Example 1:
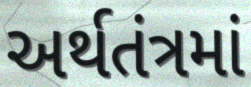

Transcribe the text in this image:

અર્થતંત્રમાં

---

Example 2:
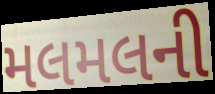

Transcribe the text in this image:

મલમલની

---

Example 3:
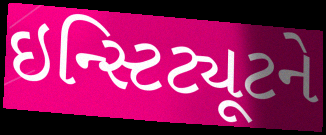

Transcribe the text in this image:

ઇન્સ્ટિટ્યૂટને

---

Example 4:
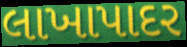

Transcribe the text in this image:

લાખાપાદર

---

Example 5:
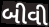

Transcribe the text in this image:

બીવી